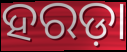
ହରଡ଼ା